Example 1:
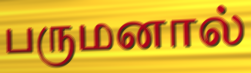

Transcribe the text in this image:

பருமனால்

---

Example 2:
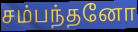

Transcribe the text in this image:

சம்பந்தனோ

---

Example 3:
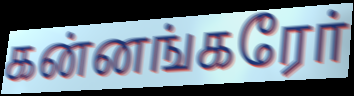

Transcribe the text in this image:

கன்னங்கரேர்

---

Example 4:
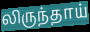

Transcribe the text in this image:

லிருந்தாய்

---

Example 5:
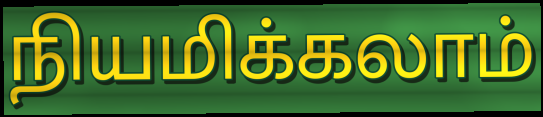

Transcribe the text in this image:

நியமிக்கலாம்